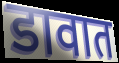
डावात